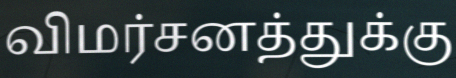
விமர்சனத்துக்கு